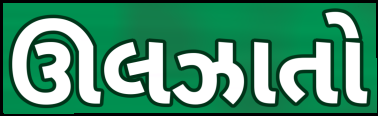
ઊલઝાતો